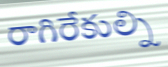
రాగిరేకుల్ని